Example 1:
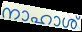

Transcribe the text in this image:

നാഹാശ്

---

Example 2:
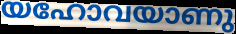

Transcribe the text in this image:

യഹോവയാണു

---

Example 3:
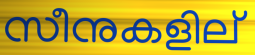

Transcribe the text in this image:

സീനുകളില്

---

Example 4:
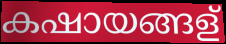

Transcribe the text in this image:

കഷായങ്ങള്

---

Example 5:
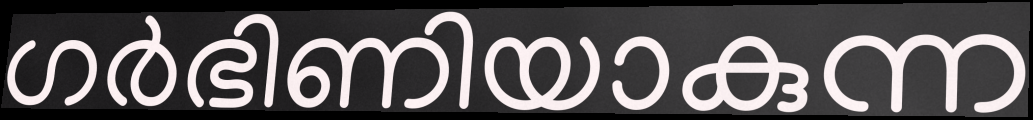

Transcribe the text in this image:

ഗർഭിണിയാകുന്ന